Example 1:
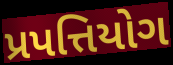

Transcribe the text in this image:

પ્રપત્તિયોગ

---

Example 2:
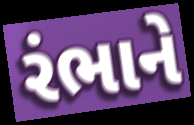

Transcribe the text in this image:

રંભાને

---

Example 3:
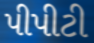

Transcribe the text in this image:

પીપીટી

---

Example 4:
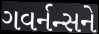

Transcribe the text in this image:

ગવર્નન્સને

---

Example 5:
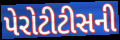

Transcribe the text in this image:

પેરોટીટીસની